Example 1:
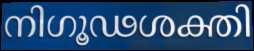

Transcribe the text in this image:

നിഗൂഢശക്തി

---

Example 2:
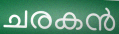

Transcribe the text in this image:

ചരകൻ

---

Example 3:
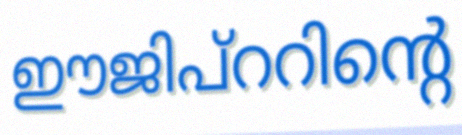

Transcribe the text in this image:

ഈജിപ്ററിന്റെ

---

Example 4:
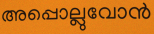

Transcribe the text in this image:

അപ്പൊല്ലുവോൻ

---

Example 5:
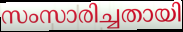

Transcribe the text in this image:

സംസാരിച്ചതായി